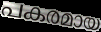
പകരമായ